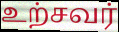
உற்சவர்